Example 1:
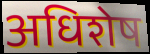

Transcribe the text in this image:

अधिशेष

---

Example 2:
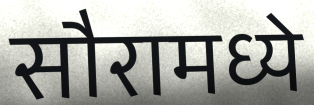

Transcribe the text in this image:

सौरामध्ये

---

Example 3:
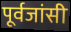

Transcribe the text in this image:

पूर्वजांसी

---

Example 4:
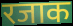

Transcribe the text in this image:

रजाक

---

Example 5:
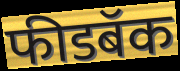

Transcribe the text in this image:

फीडबॅक